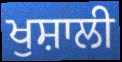
ਖੁਸ਼ਾਲੀ